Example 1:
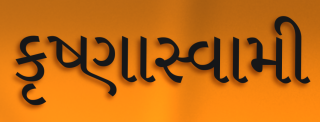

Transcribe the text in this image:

કૃષ્ણાસ્વામી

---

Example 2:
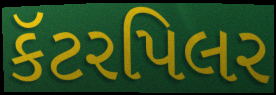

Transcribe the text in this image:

કૅટરપિલર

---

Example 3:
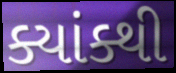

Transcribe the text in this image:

ક્યાંક્થી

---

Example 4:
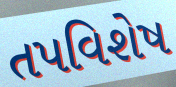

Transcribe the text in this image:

તપવિશેષ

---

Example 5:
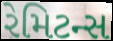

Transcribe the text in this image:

રેમિટન્સ